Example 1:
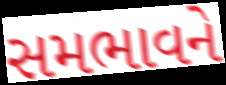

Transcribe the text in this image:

સમભાવને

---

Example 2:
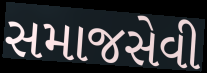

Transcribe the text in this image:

સમાજસેવી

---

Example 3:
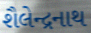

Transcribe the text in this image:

શૈલેન્દ્રનાથ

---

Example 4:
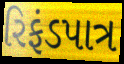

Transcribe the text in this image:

રિફંડપાત્ર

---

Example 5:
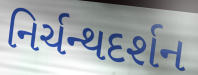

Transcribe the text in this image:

નિર્ચન્થદર્શન